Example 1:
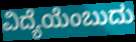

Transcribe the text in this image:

ವಿದ್ಯೆಯೆಂಬುದು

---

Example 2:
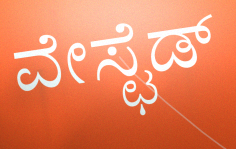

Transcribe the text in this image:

ವೇಸ್ಟೆಡ್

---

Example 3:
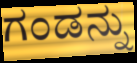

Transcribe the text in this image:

ಗಂಡನ್ನು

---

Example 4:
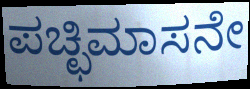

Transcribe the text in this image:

ಪಚ್ಛಿಮಾಸನೇ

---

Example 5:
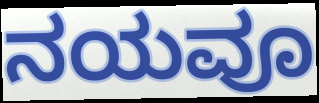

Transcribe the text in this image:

ನಯವೂ